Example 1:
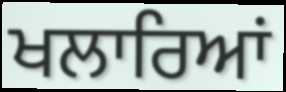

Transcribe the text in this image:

ਖਲਾਰਿਆਂ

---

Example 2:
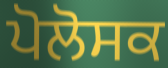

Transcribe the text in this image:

ਪੋਲੋਸਕ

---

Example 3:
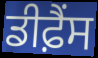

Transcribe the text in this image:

ਡੀਫ਼ੈਂਸ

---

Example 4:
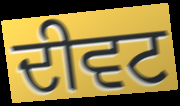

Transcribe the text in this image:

ਦੀਵਟ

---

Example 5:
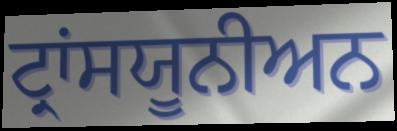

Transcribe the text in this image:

ਟ੍ਰਾਂਸਯੂਨੀਅਨ